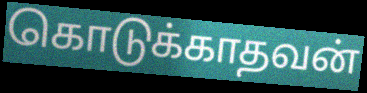
கொடுக்காதவன்